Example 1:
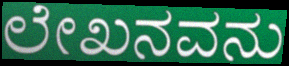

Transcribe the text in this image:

ಲೇಖನವನು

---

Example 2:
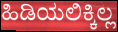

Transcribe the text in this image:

ಹಿಡಿಯಲಿಕ್ಕಿಲ್ಲ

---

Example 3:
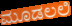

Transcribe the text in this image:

ಮೂಡಲಲಿ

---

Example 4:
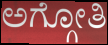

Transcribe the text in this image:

ಅಗ್ಗೋತಿ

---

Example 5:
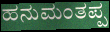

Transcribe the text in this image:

ಹನುಮಂತಪ್ಪ